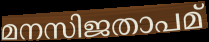
മനസിജതാപമ്